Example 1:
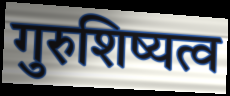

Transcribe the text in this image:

गुरुशिष्यत्व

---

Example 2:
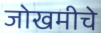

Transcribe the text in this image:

जोखमीचे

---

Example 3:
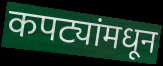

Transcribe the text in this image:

कपट्यांमधून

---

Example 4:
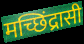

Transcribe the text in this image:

मच्छिंद्रासी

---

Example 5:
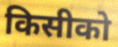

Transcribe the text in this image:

किसीको